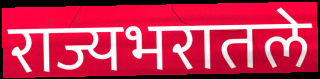
राज्यभरातले